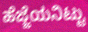
ಹೆಜ್ಜೆಯನಿಟ್ಟು